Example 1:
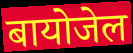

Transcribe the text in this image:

बायोजेल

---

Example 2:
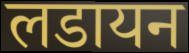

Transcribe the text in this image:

लडायन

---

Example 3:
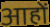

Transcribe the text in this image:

आहों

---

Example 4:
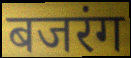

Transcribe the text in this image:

बजरंग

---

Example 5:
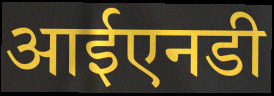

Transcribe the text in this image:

आईएनडी